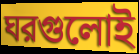
ঘরগুলোই